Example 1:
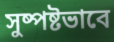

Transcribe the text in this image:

সুষ্পষ্টভাবে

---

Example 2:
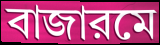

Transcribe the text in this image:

বাজারমে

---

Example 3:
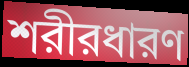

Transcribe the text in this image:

শরীরধারণ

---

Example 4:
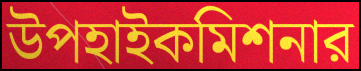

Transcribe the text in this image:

উপহাইকমিশনার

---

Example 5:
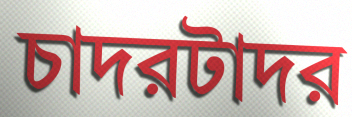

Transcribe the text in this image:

চাদরটাদর